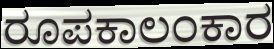
ರೂಪಕಾಲಂಕಾರ